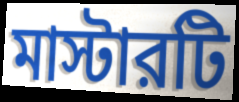
মাস্টারটি